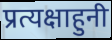
प्रत्यक्षाहुनी